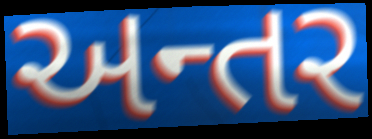
અન્તર